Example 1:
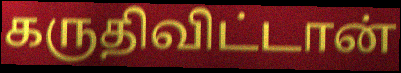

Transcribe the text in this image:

கருதிவிட்டான்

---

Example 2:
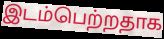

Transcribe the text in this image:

இடம்பெற்றதாக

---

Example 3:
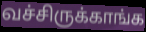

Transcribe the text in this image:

வச்சிருக்காங்க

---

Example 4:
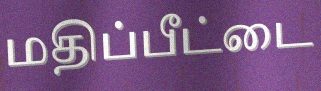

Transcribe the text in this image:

மதிப்பீட்டை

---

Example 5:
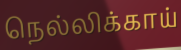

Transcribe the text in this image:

நெல்லிக்காய்